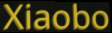
Xiaobo